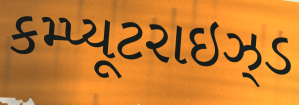
કમ્પ્યૂટરાઇઝ્ડ